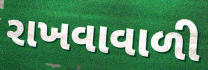
રાખવાવાળી